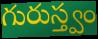
గురుస్త్వం